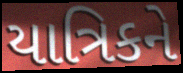
યાત્રિકને